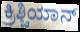
ಕ್ರಿಶ್ಚಿಯಾನ್